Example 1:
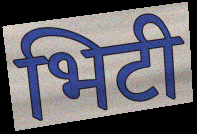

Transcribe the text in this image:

भिटी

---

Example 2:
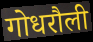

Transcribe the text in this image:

गोधरौली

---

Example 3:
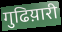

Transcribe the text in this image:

गुढिय़ारी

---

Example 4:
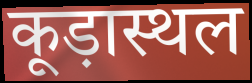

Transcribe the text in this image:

कूड़ास्थल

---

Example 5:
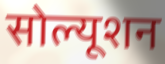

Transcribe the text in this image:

सोल्यूशन